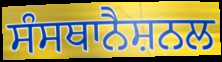
ਸੰਸਥਾਨੈਸ਼ਨਲ